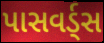
પાસવર્ડ્સ